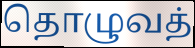
தொழுவத்